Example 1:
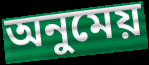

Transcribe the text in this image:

অনুমেয়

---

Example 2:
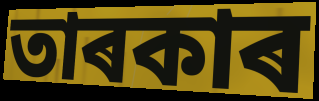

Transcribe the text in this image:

তাৰকাৰ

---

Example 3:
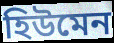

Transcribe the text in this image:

হিউমেন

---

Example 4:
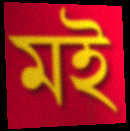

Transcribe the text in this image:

মই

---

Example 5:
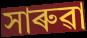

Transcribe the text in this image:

সাৰুৱা